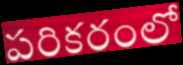
పరికరంలో